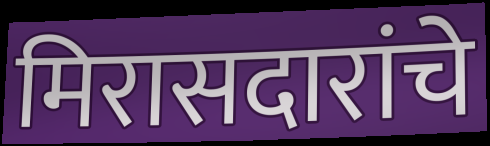
मिरासदारांचे